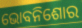
ଭୋବନିଶୋର